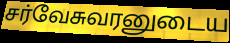
சர்வேசுவரனுடைய